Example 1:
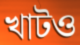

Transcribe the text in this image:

খাটও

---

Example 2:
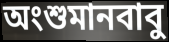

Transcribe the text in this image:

অংশুমানবাবু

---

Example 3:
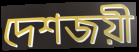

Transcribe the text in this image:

দেশজয়ী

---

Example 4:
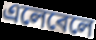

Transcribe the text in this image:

এলেবেলে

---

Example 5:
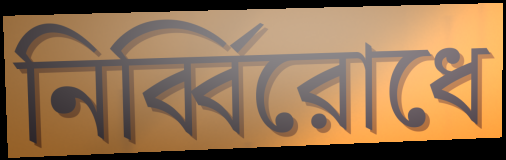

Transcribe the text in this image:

নির্ব্বিরোধে